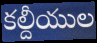
కల్దీయుల